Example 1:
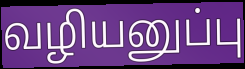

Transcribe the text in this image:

வழியனுப்பு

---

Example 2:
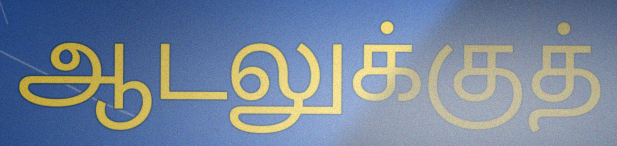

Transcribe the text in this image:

ஆடலுக்குத்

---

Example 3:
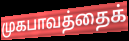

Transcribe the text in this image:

முகபாவத்தைக்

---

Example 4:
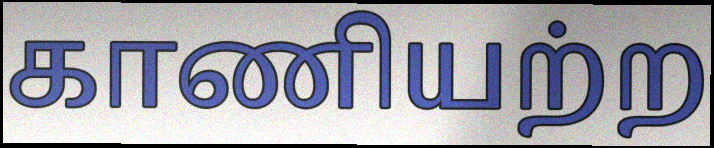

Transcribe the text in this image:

காணியற்ற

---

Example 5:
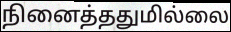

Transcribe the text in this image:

நினைத்ததுமில்லை